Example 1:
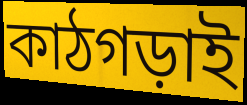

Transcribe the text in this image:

কাঠগড়াই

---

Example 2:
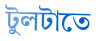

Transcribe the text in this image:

টুলটাতে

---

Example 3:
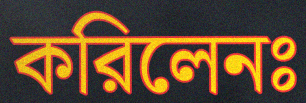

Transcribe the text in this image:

করিলেনঃ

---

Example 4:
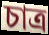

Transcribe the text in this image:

চাত্র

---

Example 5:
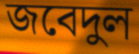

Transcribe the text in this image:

জবেদুল